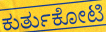
ಕುರ್ತುಕೋಟಿ